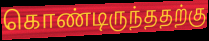
கொண்டிருந்ததற்கு